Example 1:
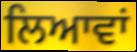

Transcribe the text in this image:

ਲਿਆਵਾਂ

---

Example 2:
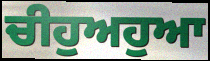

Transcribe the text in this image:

ਚੀਹੁਅਹੁਆ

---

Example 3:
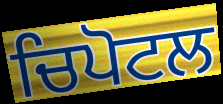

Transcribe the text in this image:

ਚਿਪੋਟਲ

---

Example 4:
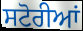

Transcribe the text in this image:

ਸਟੋਰੀਆਂ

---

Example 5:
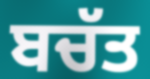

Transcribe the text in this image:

ਬਚੱਤ